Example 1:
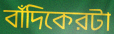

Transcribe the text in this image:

বাঁদিকেরটা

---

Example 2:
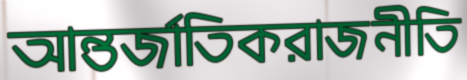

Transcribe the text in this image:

আন্তর্জাতিকরাজনীতি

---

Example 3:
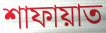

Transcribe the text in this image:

শাফায়াত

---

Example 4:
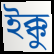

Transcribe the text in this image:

ইক্কু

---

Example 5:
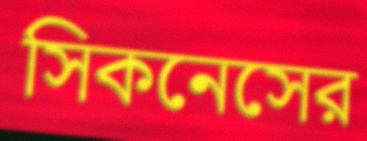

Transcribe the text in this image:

সিকনেসের